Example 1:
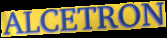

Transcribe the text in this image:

ALCETRON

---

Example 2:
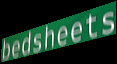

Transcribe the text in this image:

bedsheets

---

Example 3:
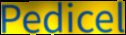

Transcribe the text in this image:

Pedicel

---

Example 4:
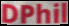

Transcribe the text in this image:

DPhil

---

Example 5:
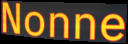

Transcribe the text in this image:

Nonne